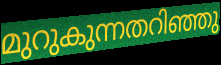
മുറുകുന്നതറിഞ്ഞു